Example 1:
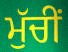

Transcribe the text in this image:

ਮੁੱਚੀਂ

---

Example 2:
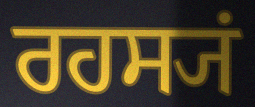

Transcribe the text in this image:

ਰਹਸ੍ਯਂ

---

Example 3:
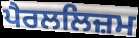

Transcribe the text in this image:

ਪੈਰਲਲਿਜ਼ਮ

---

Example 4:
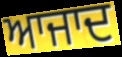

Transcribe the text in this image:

ਆਜਾਦ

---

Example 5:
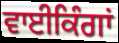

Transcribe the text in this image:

ਵਾਈਕਿੰਗਾਂ